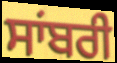
ਸਾਂਬਰੀ